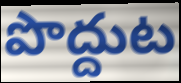
పొద్దుట